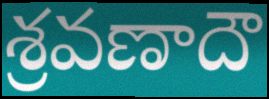
శ్రవణాదౌ